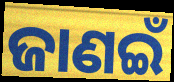
ଜାଣଇଁ